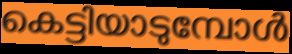
കെട്ടിയാടുമ്പോൾ